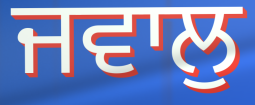
ਜਵਾਲੁ